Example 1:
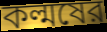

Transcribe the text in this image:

কল্মষের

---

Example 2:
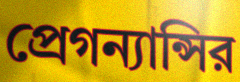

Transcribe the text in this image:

প্রেগন্যান্সির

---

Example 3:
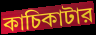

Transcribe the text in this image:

কাচিকাটার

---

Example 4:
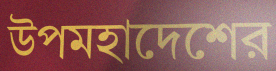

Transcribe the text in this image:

উপমহাদেশের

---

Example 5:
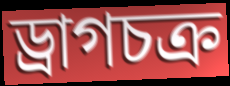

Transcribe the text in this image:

ড্রাগচক্র